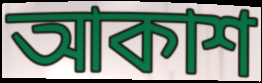
আকাশ